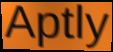
Aptly